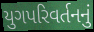
યુગપરિવર્તનનું